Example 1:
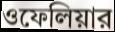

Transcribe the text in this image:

ওফেলিয়ার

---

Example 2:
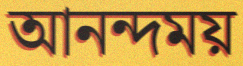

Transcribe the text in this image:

আনন্দময়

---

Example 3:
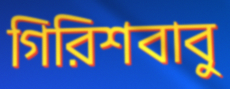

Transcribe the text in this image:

গিরিশবাবু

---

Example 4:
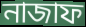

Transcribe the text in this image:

নাজাফ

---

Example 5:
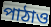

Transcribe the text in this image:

পাঠাও